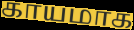
காயமாக